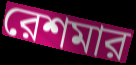
রেশমার